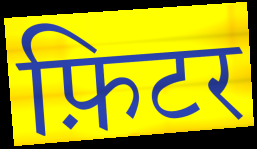
फ़िटर